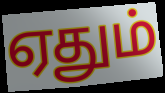
ஏதும்